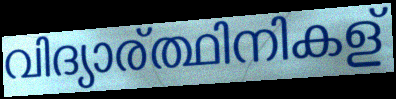
വിദ്യാര്ത്ഥിനികള്